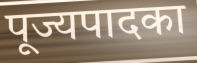
पूज्यपादका